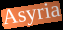
Asyria